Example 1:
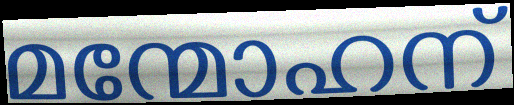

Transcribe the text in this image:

മന്മോഹന്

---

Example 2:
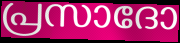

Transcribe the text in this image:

പ്രസാദോ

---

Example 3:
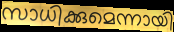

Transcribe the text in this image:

സാധിക്കുമെന്നായി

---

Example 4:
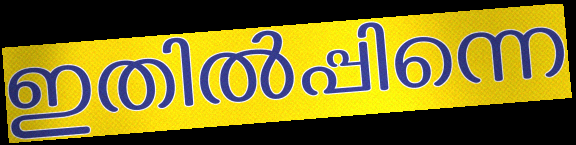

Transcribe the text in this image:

ഇതിൽപ്പിന്നെ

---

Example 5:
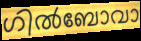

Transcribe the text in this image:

ഗിൽബോവാ